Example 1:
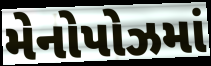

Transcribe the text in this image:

મેનોપોઝમાં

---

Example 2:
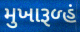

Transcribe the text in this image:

મુખારૂળ્હં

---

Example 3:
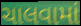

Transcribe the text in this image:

ચાલવામાં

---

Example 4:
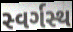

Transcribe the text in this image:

સ્વર્ગસ્થ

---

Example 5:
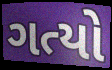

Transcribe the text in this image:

ગત્યો